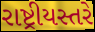
રાષ્ટ્રીયસ્તરે